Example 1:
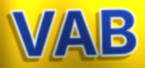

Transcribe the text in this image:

VAB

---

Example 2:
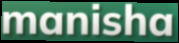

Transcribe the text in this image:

manisha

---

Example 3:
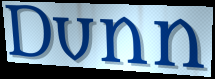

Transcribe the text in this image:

Dunn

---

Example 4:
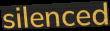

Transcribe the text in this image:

silenced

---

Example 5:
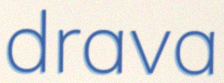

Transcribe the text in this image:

drava